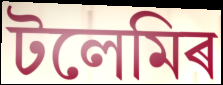
টলেমিৰ